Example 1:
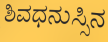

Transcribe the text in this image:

ಶಿವಧನುಸ್ಸಿನ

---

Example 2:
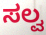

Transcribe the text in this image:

ಸಲ್ವ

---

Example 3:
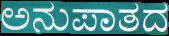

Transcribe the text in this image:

ಅನುಪಾತದ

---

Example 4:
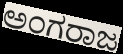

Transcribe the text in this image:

ಅಂಗರಾಜ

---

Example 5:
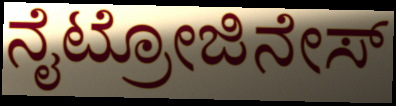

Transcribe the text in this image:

ನೈಟ್ರೋಜಿನೇಸ್